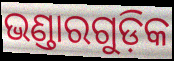
ଭଣ୍ଡାରଗୁଡ଼ିକ